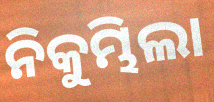
ନିକୁମ୍ଭିଲା